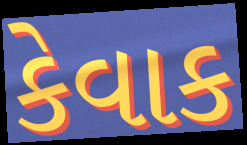
કેવાક